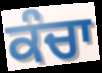
ਕੰਚਾ